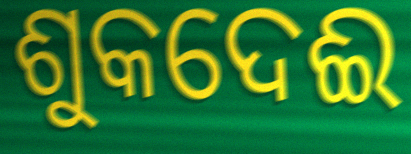
ଶୁକଦେଈ